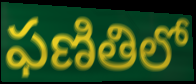
ఫణితిలో